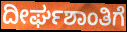
ದೀರ್ಘಶಾಂತಿಗೆ